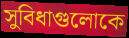
সুবিধাগুলোকে